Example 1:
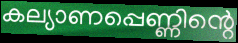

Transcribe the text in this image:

കല്യാണപ്പെണ്ണിന്റെ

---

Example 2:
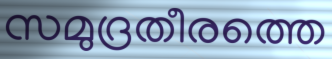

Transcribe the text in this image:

സമുദ്രതീരത്തെ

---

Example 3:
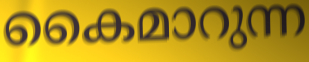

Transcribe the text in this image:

കൈമാറുന്ന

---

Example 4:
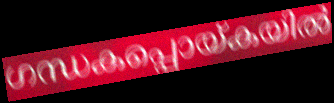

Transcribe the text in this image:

ഗന്ധകപ്പൊയ്കയിൽ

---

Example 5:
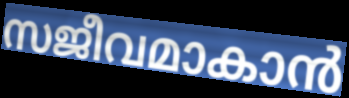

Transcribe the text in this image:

സജീവമാകാൻ